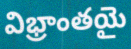
విభ్రాంతయై